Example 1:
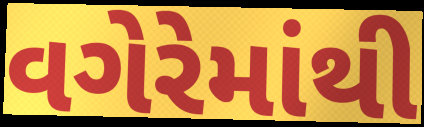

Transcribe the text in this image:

વગેરેમાંથી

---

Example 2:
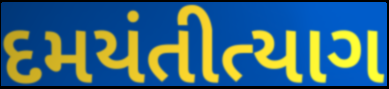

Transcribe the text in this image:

દમયંતીત્યાગ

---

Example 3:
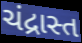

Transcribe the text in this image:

ચંદ્રાસ્ત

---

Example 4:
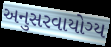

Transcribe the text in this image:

અનુસરવાયોગ્ય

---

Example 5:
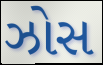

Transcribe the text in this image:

ઝોસ